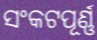
ସଂକଟପୂର୍ଣ୍ଣ